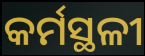
କର୍ମସ୍ଥଳୀ